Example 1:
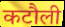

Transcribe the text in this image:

कटौली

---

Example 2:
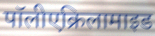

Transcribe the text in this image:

पॉलीएक्रिलामाइड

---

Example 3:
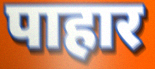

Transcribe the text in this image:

पाहार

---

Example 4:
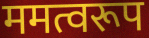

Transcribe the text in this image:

ममत्वरूप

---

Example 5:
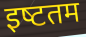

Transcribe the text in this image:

इष्‍टतम